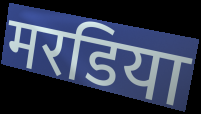
मरडिया